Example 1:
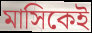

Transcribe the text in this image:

মাসিকেই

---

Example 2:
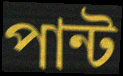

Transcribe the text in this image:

পান্ট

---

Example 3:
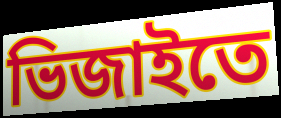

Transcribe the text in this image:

ভিজাইতে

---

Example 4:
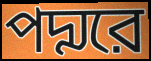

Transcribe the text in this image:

পদ্মরে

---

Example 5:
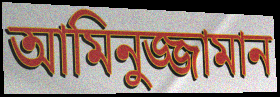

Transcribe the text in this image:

আমিনুজ্জামান